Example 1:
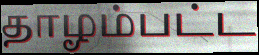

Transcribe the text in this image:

தாழம்பட்ட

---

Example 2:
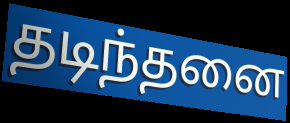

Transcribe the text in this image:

தடிந்தனை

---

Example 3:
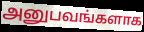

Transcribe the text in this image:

அனுபவங்களாக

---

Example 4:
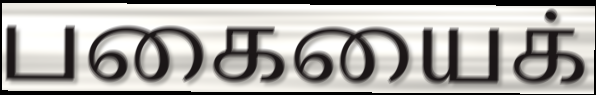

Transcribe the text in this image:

பகையைக்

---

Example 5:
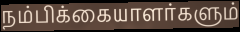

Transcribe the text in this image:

நம்பிக்கையாளர்களும்